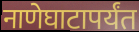
नाणेघाटापर्यंत